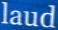
laud